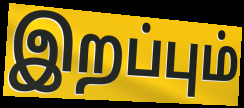
இறப்பும்